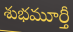
శుభమూర్తీ